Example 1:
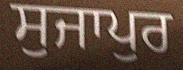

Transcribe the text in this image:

ਸੁਜਾਪੁਰ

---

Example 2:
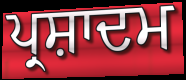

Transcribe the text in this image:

ਪ੍ਰਸ਼ਾਦਮ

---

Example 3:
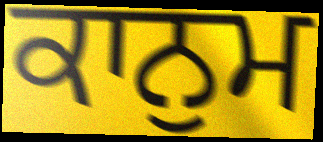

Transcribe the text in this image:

ਕਾਨੁਮ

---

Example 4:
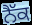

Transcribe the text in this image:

ਨੈੱਕ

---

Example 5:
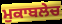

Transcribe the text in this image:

ਮੁਕਾਬਲੇਚ